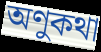
অণুকথা